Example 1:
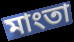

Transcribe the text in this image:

মাংতা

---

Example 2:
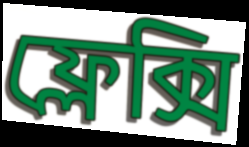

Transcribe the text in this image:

ফ্লেক্সি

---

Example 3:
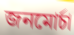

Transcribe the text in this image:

জনমোর্চা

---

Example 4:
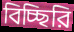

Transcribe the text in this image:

বিচ্ছিরি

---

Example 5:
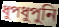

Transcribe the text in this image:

ধুপধুপুনি